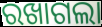
ରଖାଗଲା